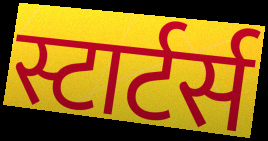
स्टार्टर्स